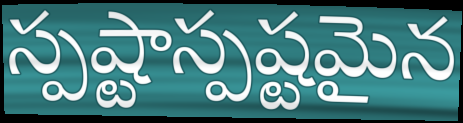
స్పష్టాస్పష్టమైన